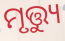
ମୃତ୍ତ୍ୟୁ